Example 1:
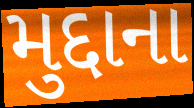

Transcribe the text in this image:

મુદ્દાના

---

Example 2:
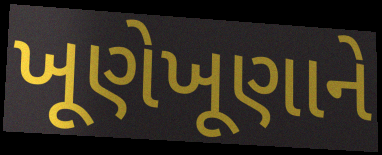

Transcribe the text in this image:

ખૂણેખૂણાને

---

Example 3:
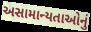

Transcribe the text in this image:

અસામાન્યતાઓનું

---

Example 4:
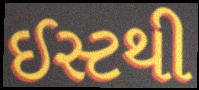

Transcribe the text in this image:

ઈસ્ટથી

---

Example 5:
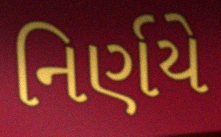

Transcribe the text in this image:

નિર્ણયે